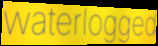
waterlogged